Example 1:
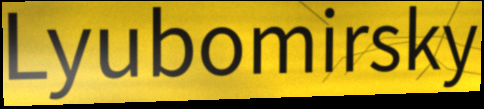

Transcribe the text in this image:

Lyubomirsky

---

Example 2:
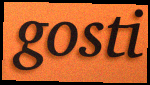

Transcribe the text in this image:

gosti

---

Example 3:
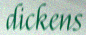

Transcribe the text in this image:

dickens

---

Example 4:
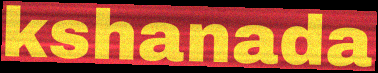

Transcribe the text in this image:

kshanada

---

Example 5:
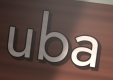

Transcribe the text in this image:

uba